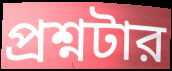
প্রশ্নটার